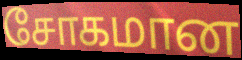
சோகமான